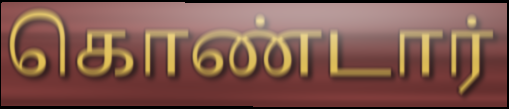
கொண்டார்